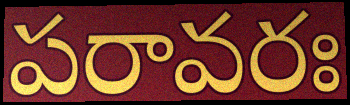
పరావరః